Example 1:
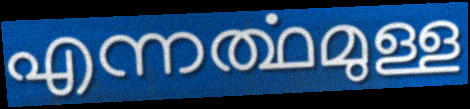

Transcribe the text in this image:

എന്നൎത്ഥമുള്ള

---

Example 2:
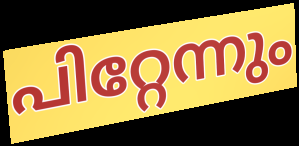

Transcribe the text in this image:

പിറ്റേന്നും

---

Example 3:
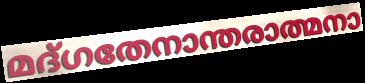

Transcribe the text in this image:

മദ്ഗതേനാന്തരാത്മനാ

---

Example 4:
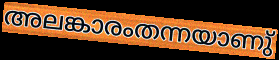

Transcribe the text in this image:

അലങ്കാരംതന്നയാണു്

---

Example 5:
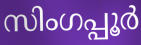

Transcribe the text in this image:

സിംഗപ്പൂർ